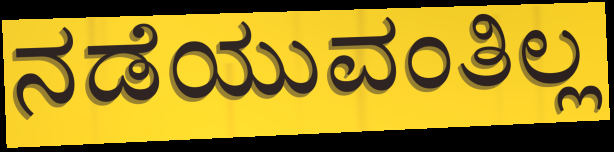
ನಡೆಯುವಂತಿಲ್ಲ